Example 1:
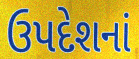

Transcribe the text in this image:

ઉપદેશનાં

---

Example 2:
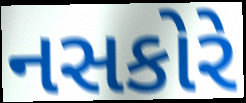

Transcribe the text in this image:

નસકોરે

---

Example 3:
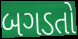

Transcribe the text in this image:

બગડતો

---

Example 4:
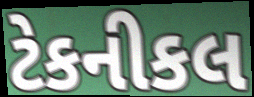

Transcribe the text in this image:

ટેકનીકલ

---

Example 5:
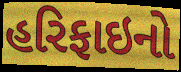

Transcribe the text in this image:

હરિફાઇનો